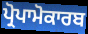
ਪ੍ਰੋਪਾਮੋਕਾਰਬ